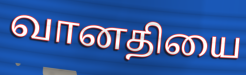
வானதியை